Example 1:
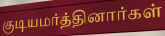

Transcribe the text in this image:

குடியமர்த்தினார்கள்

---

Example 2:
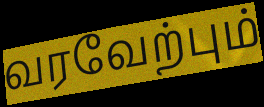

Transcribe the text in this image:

வரவேற்பும்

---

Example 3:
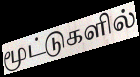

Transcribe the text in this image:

மூட்டுகளில்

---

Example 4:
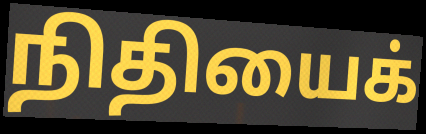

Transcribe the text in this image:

நிதியைக்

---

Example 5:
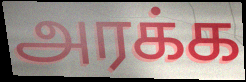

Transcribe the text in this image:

அரக்க